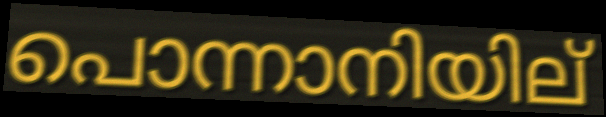
പൊന്നാനിയില്